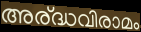
അര്ദ്ധവിരാമം